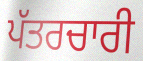
ਪੱਤਰਚਾਰੀ